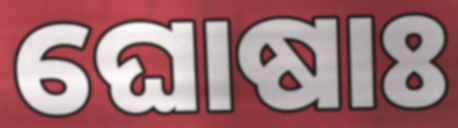
ଘୋଷାଃ